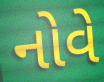
નોવે